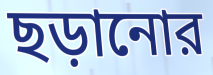
ছড়ানোর